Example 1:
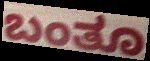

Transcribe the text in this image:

ಬಂತೂ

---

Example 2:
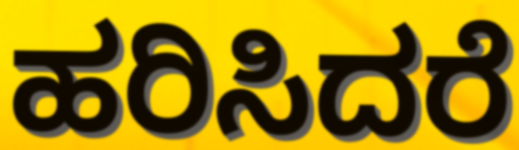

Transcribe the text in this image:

ಹರಿಸಿದರೆ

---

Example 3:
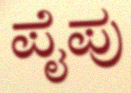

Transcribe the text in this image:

ಪೈಪು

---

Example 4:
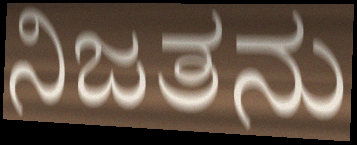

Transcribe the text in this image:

ನಿಜತನು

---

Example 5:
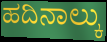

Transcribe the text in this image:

ಹದಿನಾಲ್ಕು